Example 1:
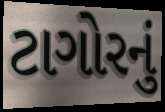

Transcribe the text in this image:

ટાગોરનું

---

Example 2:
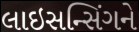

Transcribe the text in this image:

લાઇસન્સિંગને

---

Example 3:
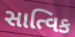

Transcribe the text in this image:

સાત્વિક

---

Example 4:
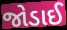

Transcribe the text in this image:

જોડાઈ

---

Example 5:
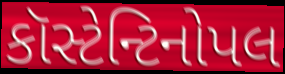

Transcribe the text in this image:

કૉસ્ટેન્ટિનોપલ